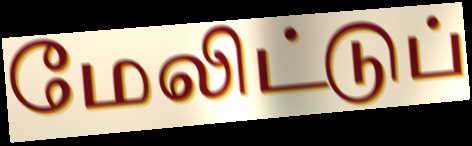
மேலிட்டுப்